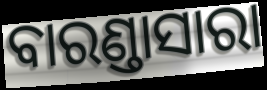
ବାରଣ୍ଡାସାରା